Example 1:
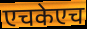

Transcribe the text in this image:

एचकेएच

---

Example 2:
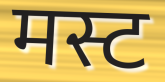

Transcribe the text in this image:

मस्‍ट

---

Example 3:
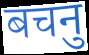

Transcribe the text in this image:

बचनु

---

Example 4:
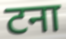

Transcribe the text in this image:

टना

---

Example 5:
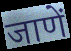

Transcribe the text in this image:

जाणें